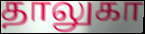
தாலுகா